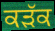
ਕੜੱਕ